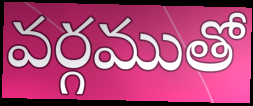
వర్గముతో